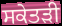
ਸਕੇਤੜੀ